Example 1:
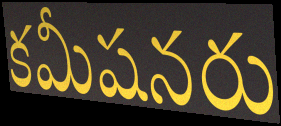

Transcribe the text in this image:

కమీషనరు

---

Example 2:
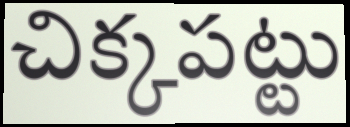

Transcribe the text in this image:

చిక్కపట్టు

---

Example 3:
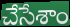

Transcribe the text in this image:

చేసేశాం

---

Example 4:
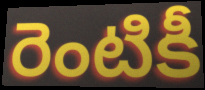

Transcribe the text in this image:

రెంటికీ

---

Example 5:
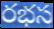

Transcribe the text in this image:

రభస